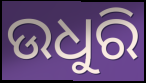
ଉଧୁରି